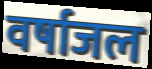
वर्षाजल